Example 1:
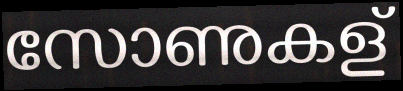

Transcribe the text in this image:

സോണുകള്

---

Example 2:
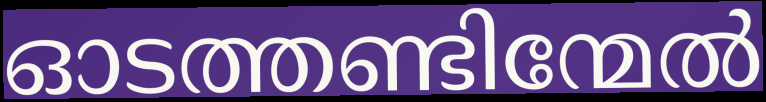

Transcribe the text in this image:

ഓടത്തണ്ടിന്മേൽ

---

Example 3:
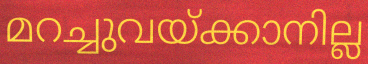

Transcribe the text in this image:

മറച്ചുവയ്ക്കാനില്ല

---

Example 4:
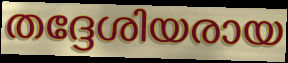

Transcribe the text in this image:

തദ്ദേശിയരായ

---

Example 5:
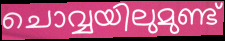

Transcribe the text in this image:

ചൊവ്വയിലുമുണ്ട്